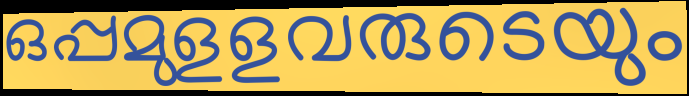
ഒപ്പമുളളവരുടെയും